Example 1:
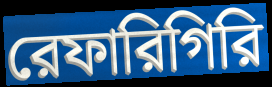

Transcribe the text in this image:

রেফারিগিরি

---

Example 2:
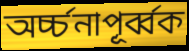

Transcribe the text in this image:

অর্চ্চনাপূর্ব্বক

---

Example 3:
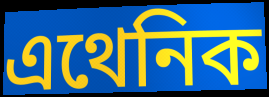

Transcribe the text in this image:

এথেনিক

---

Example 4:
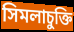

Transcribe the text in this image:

সিমলাচুক্তি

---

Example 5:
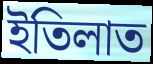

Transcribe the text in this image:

ইতিলাত